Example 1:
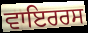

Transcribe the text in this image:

ਵਾਇਰਰਸ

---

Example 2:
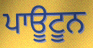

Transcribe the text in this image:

ਪਾਊਟੂਨ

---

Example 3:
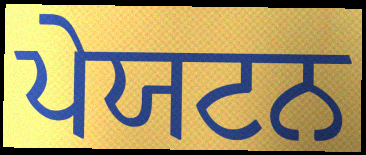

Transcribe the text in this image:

ਪੇਯਟਨ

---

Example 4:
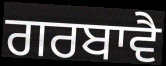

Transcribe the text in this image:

ਗਰਬਾਵੈ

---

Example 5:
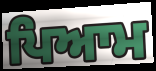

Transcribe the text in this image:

ਪਿਆਮ